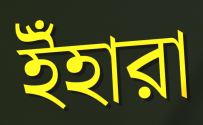
ইঁহারা